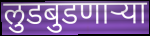
लुडबुडणाऱ्या